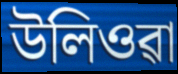
উলিওৱা